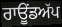
ਰਾਊਂਡਅੱਪ